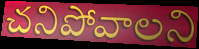
చనిపోవాలని